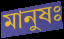
মানুষঃ